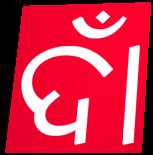
ଦାଁ